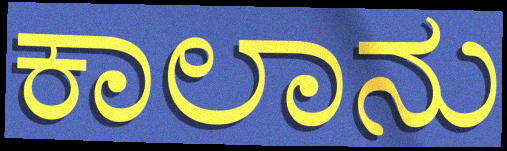
ಕಾಲಾನು